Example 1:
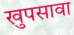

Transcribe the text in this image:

खुपसावा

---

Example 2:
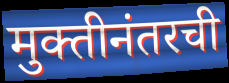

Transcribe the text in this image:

मुक्तीनंतरची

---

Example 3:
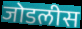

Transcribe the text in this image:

जोडलीस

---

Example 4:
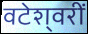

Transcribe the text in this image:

वटेश्वरीं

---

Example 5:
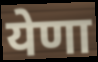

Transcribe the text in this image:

येणा